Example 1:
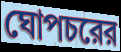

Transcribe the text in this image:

ঘোপচরের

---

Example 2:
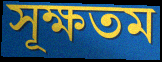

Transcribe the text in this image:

সূক্ষতম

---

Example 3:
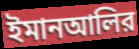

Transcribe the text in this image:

ইমানআলির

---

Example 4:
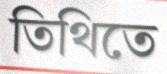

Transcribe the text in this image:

তিথিতে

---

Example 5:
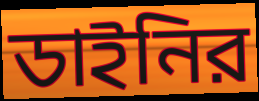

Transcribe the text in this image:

ডাইনির